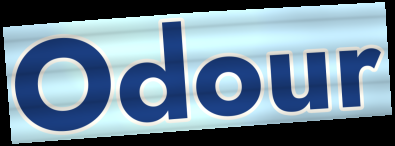
Odour